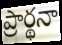
ప్రార్థనా